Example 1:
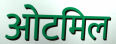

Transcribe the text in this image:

ओटमिल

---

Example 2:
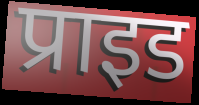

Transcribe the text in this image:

प्राइड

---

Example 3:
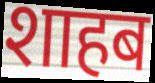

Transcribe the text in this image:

शाहब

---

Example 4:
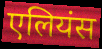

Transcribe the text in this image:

एलियंस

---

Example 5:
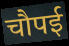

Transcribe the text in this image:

चौपई